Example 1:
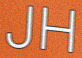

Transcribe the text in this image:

JH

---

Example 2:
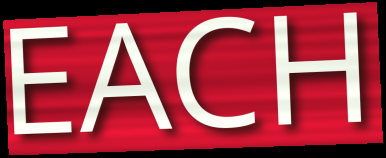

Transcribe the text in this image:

EACH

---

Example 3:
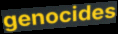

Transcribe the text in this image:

genocides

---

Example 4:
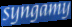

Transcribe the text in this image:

syngamy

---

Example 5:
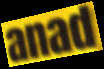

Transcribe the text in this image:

anad